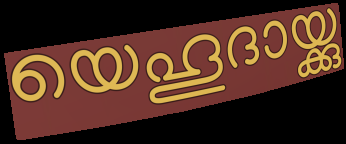
യെഹൂദായ്ക്കു